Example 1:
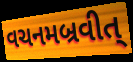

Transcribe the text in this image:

વચનમબ્રવીત્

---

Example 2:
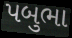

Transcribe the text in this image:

પબુભા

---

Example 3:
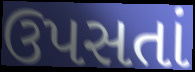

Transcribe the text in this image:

ઉપસતાં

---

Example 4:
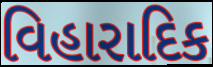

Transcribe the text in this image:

વિહારાદિક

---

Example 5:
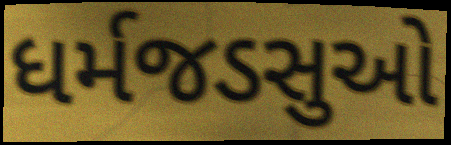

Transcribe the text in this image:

ધર્મજડસુઓ